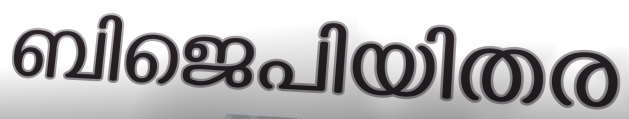
ബിജെപിയിതര